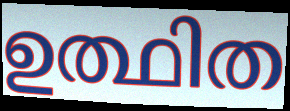
ഉത്ഥിത